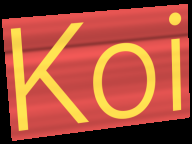
Koi